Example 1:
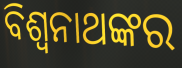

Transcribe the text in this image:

ବିଶ୍ୱନାଥଙ୍କର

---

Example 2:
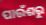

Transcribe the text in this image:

ପାଉଁଶରୁ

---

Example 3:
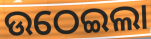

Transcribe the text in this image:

ଉଠେଇଲା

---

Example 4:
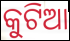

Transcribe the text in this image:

କୁଟିଆ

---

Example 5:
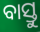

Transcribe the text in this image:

ବାସ୍ତୁ